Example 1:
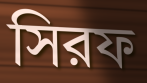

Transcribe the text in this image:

সিরফ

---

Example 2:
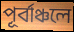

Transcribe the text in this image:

পূর্বাঞ্চলে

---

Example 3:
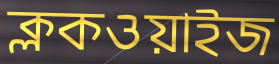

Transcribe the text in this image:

ক্লকওয়াইজ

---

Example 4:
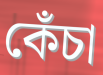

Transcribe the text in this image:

কেঁচা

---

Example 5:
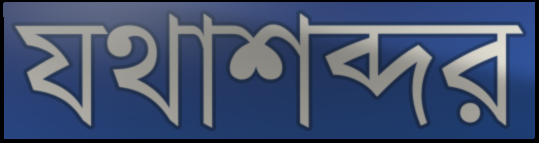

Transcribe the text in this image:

যথাশব্দর